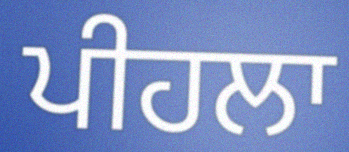
ਪੀਹਲਾ